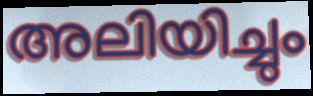
അലിയിച്ചും